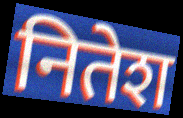
नितेश